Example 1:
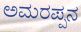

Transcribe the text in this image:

ಅಮರಪ್ಪನ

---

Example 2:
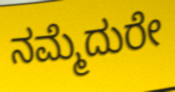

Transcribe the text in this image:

ನಮ್ಮೆದುರೇ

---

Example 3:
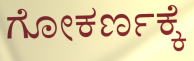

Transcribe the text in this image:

ಗೋಕರ್ಣಕ್ಕೆ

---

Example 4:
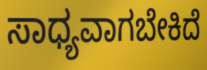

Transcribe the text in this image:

ಸಾಧ್ಯವಾಗಬೇಕಿದೆ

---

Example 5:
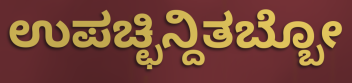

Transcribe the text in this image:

ಉಪಚ್ಛಿನ್ದಿತಬ್ಬೋ